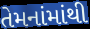
તેમનાંમાંથી